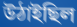
উঠাইছিল